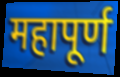
महापूर्ण